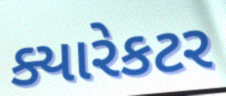
ક્યારેકટર